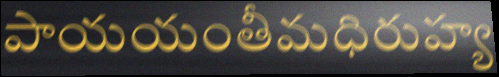
పాయయంతీమధిరుహ్య